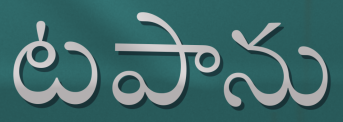
టపాను